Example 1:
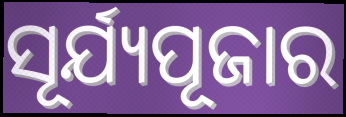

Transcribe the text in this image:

ସୂର୍ଯ୍ୟପୂଜାର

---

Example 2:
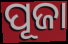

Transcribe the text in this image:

ପୂଜା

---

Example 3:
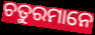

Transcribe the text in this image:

ଚତୁରମାନେ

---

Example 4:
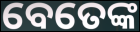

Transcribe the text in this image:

ବେତେଙ୍କ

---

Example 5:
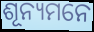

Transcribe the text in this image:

ଶୂନ୍ୟମନେ